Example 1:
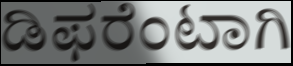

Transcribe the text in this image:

ಡಿಫರೆಂಟಾಗಿ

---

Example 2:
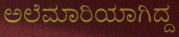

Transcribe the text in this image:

ಅಲೆಮಾರಿಯಾಗಿದ್ದ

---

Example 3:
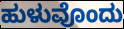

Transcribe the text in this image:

ಹುಳುವೊಂದು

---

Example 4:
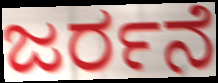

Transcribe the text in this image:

ಜರ್ರನೆ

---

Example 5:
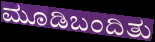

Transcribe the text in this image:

ಮೂಡಿಬಂದಿತು